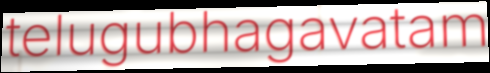
telugubhagavatam